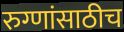
रुग्णांसाठीच